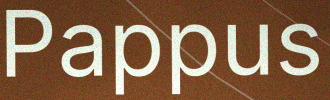
Pappus